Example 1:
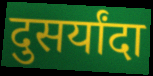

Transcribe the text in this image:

दुसर्यांदा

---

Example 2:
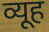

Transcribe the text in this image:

व्यूह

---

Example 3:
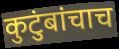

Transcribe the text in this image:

कुटुंबांचाच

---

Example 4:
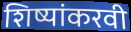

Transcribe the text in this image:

शिष्यांकरवी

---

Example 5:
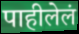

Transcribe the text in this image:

पाहीलेलं